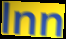
Inn